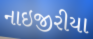
નાઇજીરીયા